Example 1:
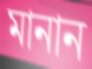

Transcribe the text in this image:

মানান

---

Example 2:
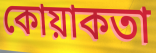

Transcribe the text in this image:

কোয়াকতা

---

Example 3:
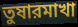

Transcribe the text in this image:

তুষারমাখা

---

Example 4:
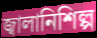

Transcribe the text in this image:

জ্বালানিশিল্প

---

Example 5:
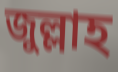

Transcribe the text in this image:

জুল্লাহ